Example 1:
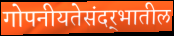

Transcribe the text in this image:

गोपनीयतेसंदर्भातील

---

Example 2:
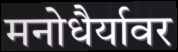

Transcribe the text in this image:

मनोधैर्यावर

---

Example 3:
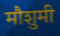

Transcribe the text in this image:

मौशुमी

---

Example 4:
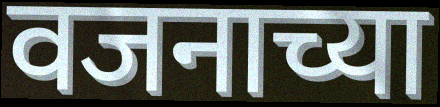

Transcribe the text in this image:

वजनाच्या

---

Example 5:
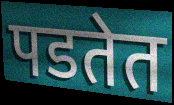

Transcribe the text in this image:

पडतेत